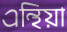
এন্থিয়া